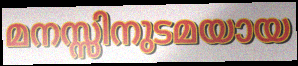
മനസ്സിനുടമയായ